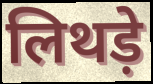
लिथड़े